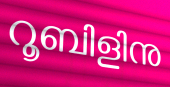
റൂബിളിനു